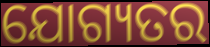
ଯୋଗ୍ୟତର